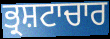
ਭ੍ਰਸ਼ਟਾਚਾਰ